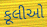
કૂલીઓ